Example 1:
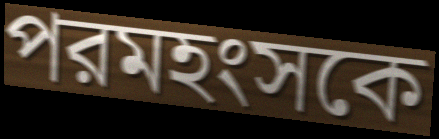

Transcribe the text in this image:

পরমহংসকে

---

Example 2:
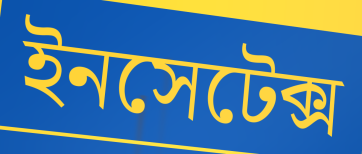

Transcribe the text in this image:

ইনসেটেক্স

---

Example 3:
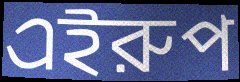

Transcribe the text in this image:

এইরুপ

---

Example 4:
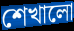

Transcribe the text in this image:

শেখালো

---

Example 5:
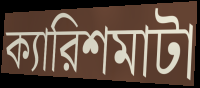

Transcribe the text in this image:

ক্যারিশমাটা